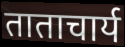
ताताचार्य